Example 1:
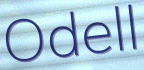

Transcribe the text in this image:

Odell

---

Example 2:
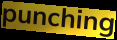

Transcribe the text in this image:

punching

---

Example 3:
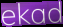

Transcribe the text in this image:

ekad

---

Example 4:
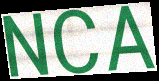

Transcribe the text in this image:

NCA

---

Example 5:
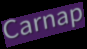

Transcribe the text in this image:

Carnap